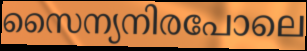
സൈന്യനിരപോലെ